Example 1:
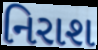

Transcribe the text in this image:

નિરાશ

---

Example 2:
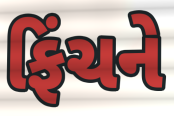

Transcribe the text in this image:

ફિંચને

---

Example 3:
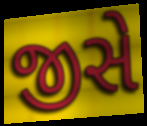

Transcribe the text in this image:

જીસે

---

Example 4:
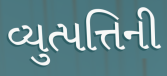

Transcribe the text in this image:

વ્યુત્પત્તિની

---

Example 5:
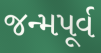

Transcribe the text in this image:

જન્મપૂર્વ